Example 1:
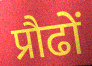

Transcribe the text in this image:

प्रौढों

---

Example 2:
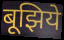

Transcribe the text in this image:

बूझिये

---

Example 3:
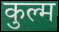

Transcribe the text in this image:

कुल्म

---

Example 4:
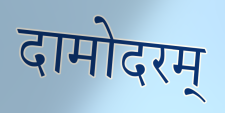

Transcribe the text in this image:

दामोदरम्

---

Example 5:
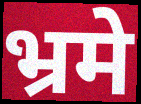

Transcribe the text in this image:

भ्रमे